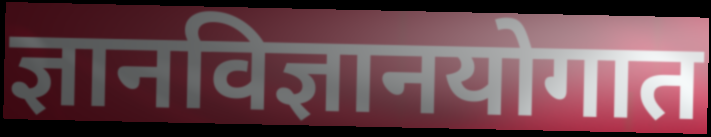
ज्ञानविज्ञानयोगात